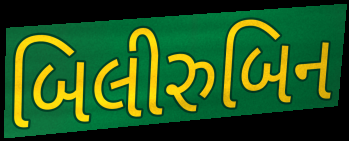
બિલીરુબિન